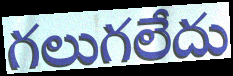
గలుగలేదు